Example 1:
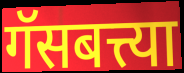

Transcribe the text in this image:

गॅसबत्त्या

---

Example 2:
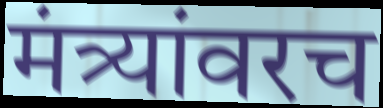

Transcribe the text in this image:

मंत्र्यांवरच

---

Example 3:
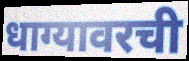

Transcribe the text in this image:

धाग्यावरची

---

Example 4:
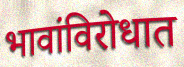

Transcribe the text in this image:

भावांविरोधात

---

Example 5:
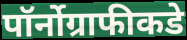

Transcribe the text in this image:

पॉर्नोग्राफीकडे